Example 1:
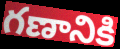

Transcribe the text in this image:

గణానికి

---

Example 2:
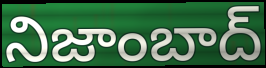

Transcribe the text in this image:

నిజాంబాద్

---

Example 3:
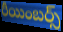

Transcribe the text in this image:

రీయింబర్స్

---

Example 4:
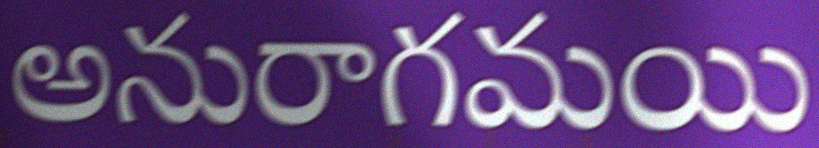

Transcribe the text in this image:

అనురాగమయి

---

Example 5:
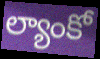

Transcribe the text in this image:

ల్యాంకో